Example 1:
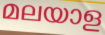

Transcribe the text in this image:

മലയാള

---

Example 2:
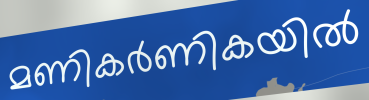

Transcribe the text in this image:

മണികർണികയിൽ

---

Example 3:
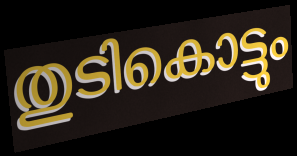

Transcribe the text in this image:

തുടികൊട്ടും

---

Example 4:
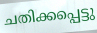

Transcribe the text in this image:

ചതിക്കപ്പെട്ടു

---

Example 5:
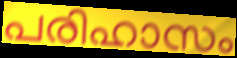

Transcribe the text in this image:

പരിഹാസം